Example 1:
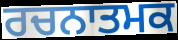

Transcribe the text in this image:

ਰਚਨਾਤਮਕ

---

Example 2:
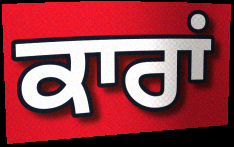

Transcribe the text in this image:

ਕਾਰਾਂ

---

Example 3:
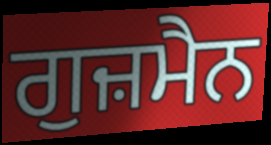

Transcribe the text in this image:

ਗੁਜ਼ਮੈਨ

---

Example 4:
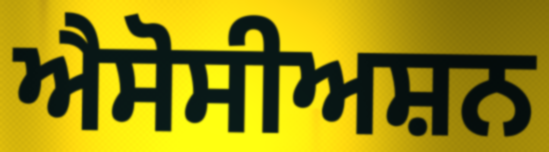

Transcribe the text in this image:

ਐਸੋਸੀਅਸ਼ਨ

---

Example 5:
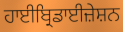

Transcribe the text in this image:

ਹਾਈਬ੍ਰਿਡਾਈਜ਼ੇਸ਼ਨ